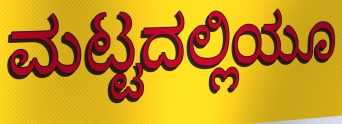
ಮಟ್ಟದಲ್ಲಿಯೂ